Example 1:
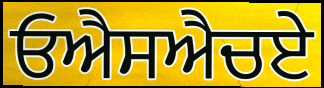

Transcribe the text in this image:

ਓਐਸਐਚਏ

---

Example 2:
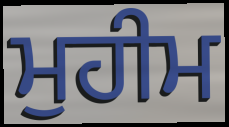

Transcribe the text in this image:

ਮੁਹੀਮ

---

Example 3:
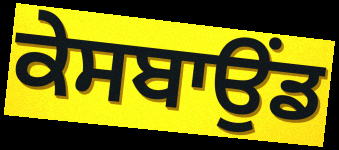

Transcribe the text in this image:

ਕੇਸਬਾਉਂਡ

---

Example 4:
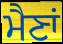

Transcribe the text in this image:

ਮੈਣਾਂ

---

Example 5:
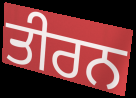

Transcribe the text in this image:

ਤੀਰਨ